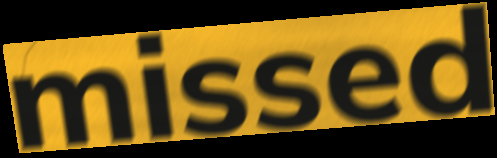
missed